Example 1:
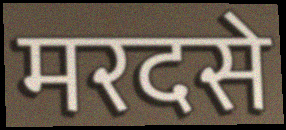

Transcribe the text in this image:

मरदसे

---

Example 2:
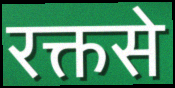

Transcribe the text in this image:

रक्तसे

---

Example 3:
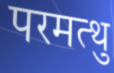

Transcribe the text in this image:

परमत्थु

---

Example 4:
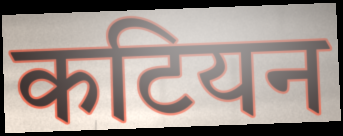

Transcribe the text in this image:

कटियन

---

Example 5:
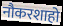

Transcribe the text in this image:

नौकरशाहो